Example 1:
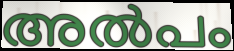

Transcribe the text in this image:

അൽപം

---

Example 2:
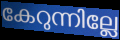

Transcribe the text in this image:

കേറുന്നില്ലേ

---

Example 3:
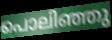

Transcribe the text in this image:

പൊലിഞ്ഞു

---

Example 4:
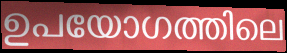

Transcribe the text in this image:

ഉപയോഗത്തിലെ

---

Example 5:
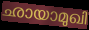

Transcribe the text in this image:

ഛായാമുഖി